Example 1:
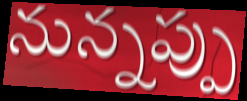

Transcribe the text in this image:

నున్నప్పు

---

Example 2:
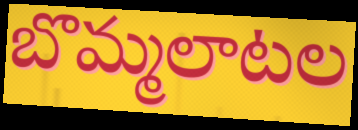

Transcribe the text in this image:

బొమ్మలాటల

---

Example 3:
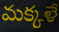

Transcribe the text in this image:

మక్కళే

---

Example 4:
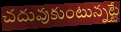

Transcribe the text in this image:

చదువుకుంటున్నట్టే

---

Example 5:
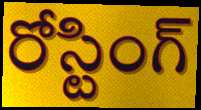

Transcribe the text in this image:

రోస్టింగ్